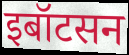
इबॉटसन